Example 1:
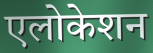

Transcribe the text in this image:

एलोकेशन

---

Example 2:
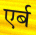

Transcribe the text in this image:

एर्ब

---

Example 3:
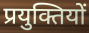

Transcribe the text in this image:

प्रयुक्तियों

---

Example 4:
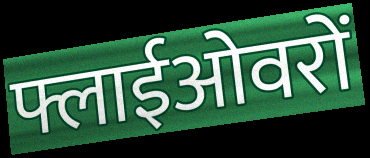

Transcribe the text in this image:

फ्लाईओवरों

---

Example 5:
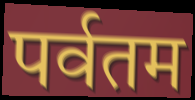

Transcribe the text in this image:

पर्वतम